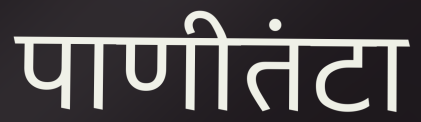
पाणीतंटा